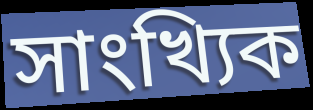
সাংখ্যিক